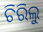
ଚିରିଲୁ